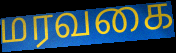
மரவகை